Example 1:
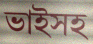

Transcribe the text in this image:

ভাইসহ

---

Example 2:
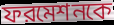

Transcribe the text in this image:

ফরমেশনকে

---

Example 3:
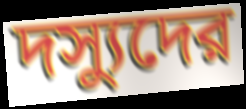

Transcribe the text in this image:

দস্যুদের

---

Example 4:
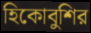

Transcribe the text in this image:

হিকোবুশির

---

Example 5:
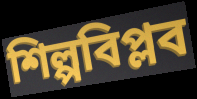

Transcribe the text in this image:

শিল্পবিপ্লব